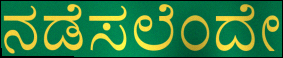
ನಡೆಸಲೆಂದೇ